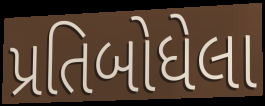
પ્રતિબોધેલા